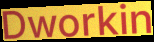
Dworkin